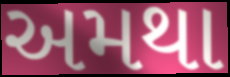
અમથા